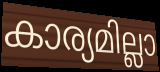
കാര്യമില്ലാ